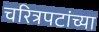
चरित्रपटांच्या